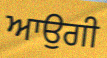
ਆਉਗੀ